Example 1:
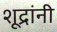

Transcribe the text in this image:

शूद्रांनी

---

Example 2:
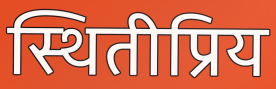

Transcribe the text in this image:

स्थितीप्रिय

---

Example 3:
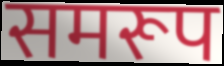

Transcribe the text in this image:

समरूप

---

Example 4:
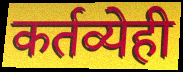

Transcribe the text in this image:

कर्तव्येही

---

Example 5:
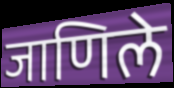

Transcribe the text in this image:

जाणिले